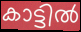
കാട്ടിൽ